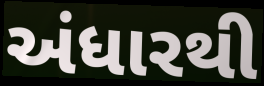
અંધારથી